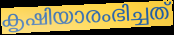
കൃഷിയാരംഭിച്ചത്